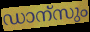
ഡാന്സും